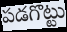
పడగొట్టు